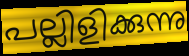
പല്ലിളിക്കുന്നു